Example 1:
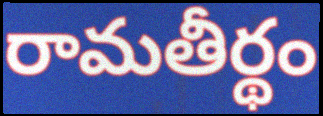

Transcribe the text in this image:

రామతీర్థం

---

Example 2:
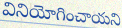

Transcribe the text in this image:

వినియోగించాయని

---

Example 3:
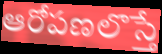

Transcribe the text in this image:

ఆరోపణలొస్తే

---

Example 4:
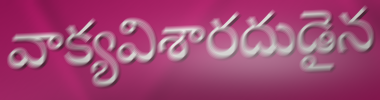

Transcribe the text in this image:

వాక్యవిశారదుడైన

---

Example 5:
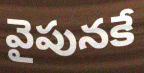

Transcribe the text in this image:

వైపునకే